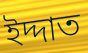
ইদ্দাত